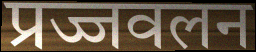
प्रज्जवलन